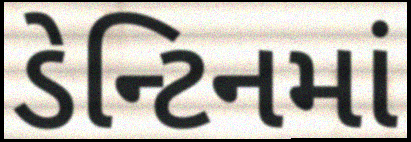
ડેન્ટિનમાં